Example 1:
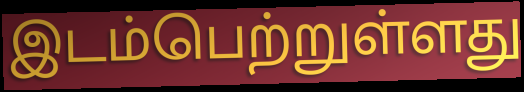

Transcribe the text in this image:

இடம்பெற்றுள்ளது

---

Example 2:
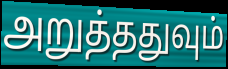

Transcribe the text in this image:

அறுத்ததுவும்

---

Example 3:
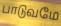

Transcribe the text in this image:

பாடுவமே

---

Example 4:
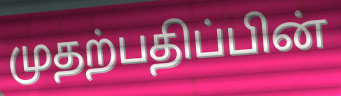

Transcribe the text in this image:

முதற்பதிப்பின்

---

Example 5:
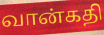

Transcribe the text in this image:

வான்கதி